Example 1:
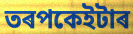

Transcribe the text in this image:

তৰপকেইটাৰ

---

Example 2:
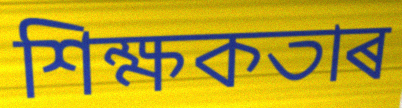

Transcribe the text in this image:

শিক্ষকতাৰ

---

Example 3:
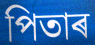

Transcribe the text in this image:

পিতাৰ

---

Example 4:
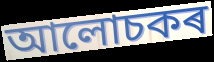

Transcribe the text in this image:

আলোচকৰ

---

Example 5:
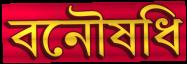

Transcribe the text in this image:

বনৌষধি